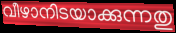
വീഴാനിടയാക്കുന്നതു